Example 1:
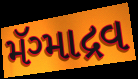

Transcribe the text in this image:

મૅગ્માદ્રવ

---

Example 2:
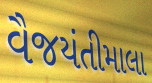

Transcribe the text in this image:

વૈજયંતીમાલા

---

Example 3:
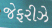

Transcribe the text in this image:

જેફરીઝે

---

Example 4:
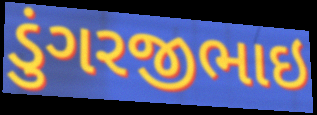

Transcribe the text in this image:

ડુંગરજીભાઇ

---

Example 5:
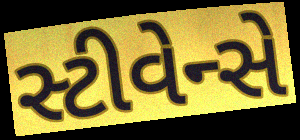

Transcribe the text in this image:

સ્ટીવેન્સે